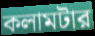
কলামটার